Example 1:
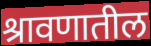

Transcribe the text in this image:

श्रावणातील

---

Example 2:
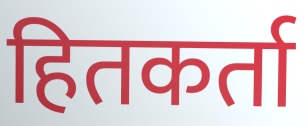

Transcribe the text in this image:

हितकर्ता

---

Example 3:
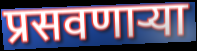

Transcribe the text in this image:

प्रसवणाऱ्या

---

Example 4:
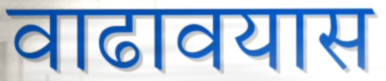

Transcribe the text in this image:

वाढावयास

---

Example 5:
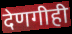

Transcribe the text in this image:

देणगीही